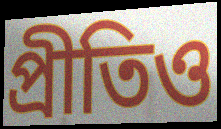
প্রীতিও